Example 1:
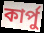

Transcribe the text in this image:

কার্পু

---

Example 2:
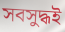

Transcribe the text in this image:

সবসুদ্ধই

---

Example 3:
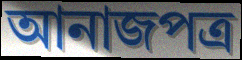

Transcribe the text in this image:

আনাজপত্র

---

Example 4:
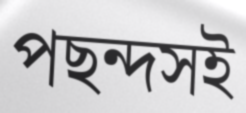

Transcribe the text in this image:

পছন্দসই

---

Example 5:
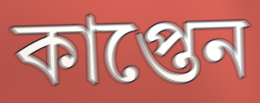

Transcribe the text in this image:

কাপ্তেন